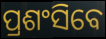
ପ୍ରଶଂସିବେ